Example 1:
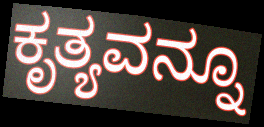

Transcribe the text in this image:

ಕೃತ್ಯವನ್ನೂ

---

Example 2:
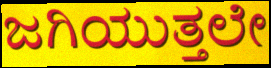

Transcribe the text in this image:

ಜಗಿಯುತ್ತಲೇ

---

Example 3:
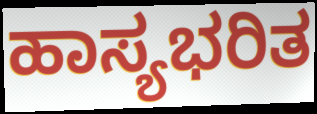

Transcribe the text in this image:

ಹಾಸ್ಯಭರಿತ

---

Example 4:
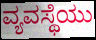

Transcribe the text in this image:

ವ್ಯವಸ್ಥೆಯು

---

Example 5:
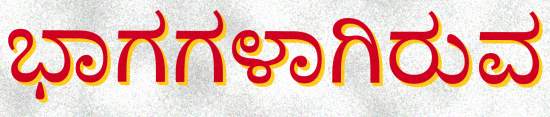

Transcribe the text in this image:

ಭಾಗಗಳಾಗಿರುವ